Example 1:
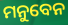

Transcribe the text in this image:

ମନୁବେନ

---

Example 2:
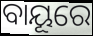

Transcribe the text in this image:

ବାୟୂରେ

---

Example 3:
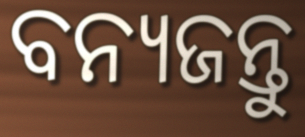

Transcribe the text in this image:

ବନ୍ୟଜନ୍ତୁ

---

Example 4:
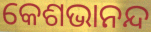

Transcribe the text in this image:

କେଶଭାନନ୍ଦ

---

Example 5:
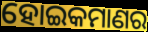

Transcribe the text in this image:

ହୋଇକମାଣର